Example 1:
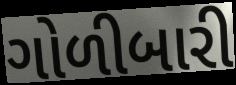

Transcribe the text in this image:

ગોળીબારી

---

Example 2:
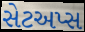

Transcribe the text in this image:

સેટઅપ્સ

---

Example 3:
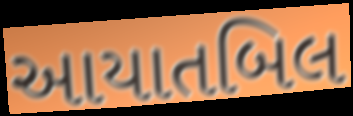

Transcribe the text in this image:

આયાતબિલ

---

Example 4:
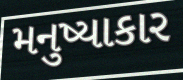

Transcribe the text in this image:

મનુષ્યાકાર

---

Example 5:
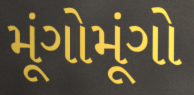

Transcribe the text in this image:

મૂંગોમૂંગો